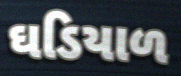
ઘડિયાળ